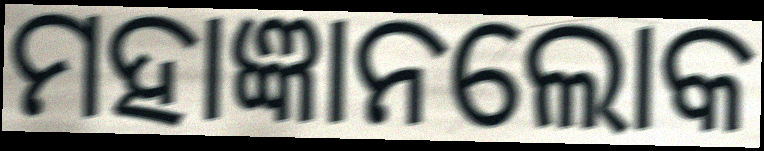
ମହାଜ୍ଞାନଲୋକ